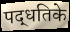
पद्धतिके